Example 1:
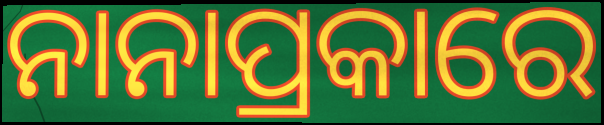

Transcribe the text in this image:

ନାନାପ୍ରକାରେ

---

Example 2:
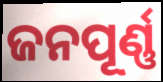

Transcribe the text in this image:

ଜନପୂର୍ଣ୍ଣ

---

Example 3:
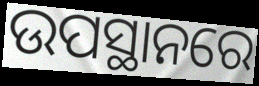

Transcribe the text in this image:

ଉପସ୍ଥାନରେ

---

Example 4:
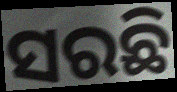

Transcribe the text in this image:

ସରଛି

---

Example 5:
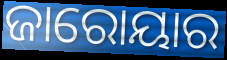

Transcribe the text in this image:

ଜାରୋୟାର